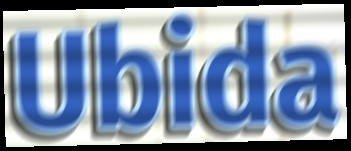
Ubida